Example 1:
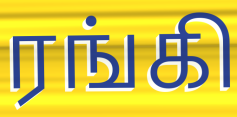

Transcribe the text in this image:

ரங்கி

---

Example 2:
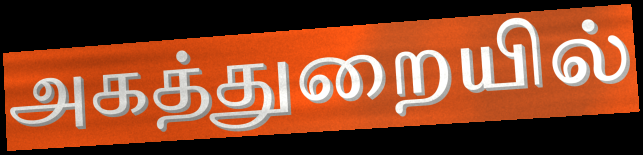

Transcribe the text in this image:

அகத்துறையில்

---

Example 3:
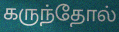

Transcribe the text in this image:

கருந்தோல்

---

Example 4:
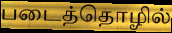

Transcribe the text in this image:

படைத்தொழில்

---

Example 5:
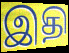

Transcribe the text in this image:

இதி